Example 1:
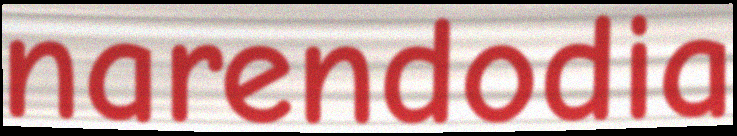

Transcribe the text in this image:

narendodia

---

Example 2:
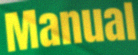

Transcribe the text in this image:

Manual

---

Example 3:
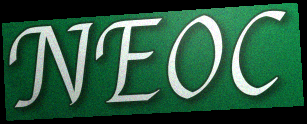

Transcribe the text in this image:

NEOC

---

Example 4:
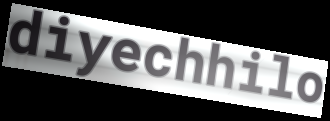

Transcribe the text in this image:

diyechhilo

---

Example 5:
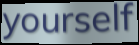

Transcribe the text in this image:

yourself